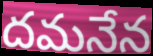
దమనేన